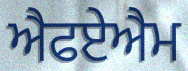
ਐਫਏਐਮ